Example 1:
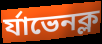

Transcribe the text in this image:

র্যাভেনক্ল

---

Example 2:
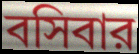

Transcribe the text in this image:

বসিবার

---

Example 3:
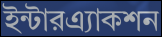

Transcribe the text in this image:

ইন্টারএ্যাকশন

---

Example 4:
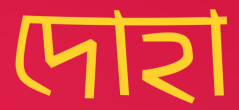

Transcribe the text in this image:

দোহা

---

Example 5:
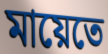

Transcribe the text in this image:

মায়েতে